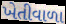
ખેતીવાળા